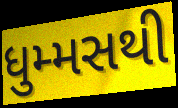
ધુમ્મસથી